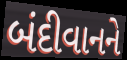
બંદીવાનને